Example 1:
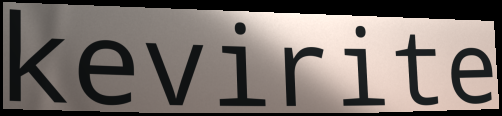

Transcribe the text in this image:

kevirite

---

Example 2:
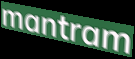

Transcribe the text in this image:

mantram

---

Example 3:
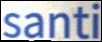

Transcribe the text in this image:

santi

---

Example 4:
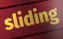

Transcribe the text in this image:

sliding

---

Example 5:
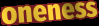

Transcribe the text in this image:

oneness